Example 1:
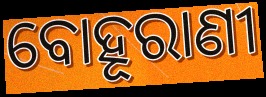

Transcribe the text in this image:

ବୋହୂରାଣୀ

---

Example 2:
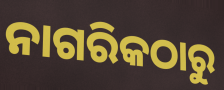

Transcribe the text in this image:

ନାଗରିକଠାରୁ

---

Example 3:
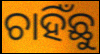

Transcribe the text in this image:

ଚାହିଁଛୁ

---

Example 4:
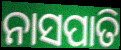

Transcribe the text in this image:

ନାସପାତି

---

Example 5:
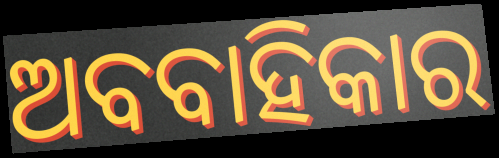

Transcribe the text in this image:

ଅବବାହିକାର